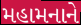
મહામનાને